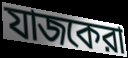
যাজকেরা